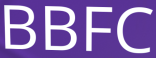
BBFC